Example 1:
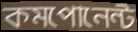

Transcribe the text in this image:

কমপোনেন্ট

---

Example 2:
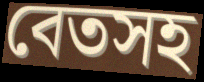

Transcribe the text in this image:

বেতসহ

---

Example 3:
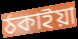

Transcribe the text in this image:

ঠকাইয়া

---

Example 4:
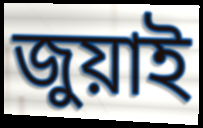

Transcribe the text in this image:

জুয়াই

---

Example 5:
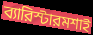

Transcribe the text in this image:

ব্যারিস্টারমশাই